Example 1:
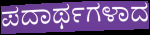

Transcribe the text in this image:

ಪದಾರ್ಥಗಳಾದ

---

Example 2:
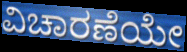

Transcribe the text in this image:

ವಿಚಾರಣೆಯೇ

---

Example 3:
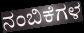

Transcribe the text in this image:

ನಂಬಿಕೆಗಳ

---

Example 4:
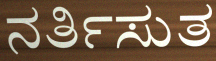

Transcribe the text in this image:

ನರ್ತಿಸುತ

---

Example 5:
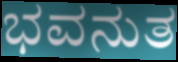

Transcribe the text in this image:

ಭವನುತ